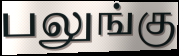
பலுங்கு